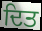
ਦਿਤ